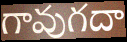
గావుగదా